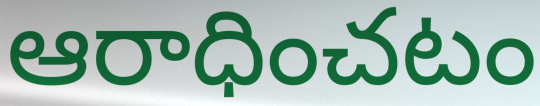
ఆరాధించటం